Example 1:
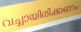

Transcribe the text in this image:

വച്ചായിരിക്കണം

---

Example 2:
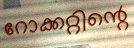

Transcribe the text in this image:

റോക്കറ്റിന്റെ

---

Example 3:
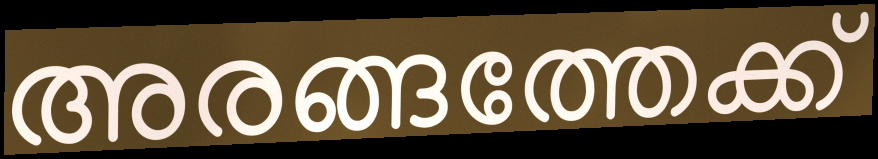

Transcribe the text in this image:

അരങ്ങത്തേക്ക്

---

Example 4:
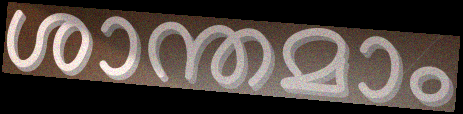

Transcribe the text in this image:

ശാന്തമാം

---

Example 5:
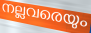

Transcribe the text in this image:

നല്ലവരെയും